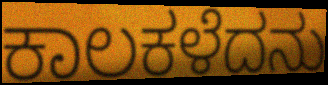
ಕಾಲಕಳೆದನು